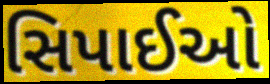
સિપાઈઓ